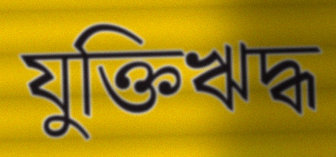
যুক্তিঋদ্ধ